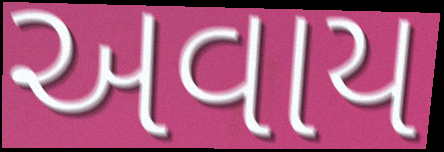
અવાય